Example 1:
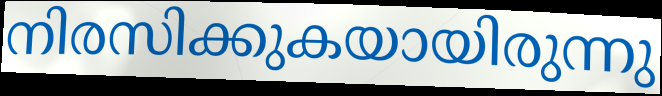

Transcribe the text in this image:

നിരസിക്കുകയായിരുന്നു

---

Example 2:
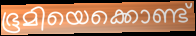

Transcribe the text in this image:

ഭൂമിയെക്കൊണ്ട്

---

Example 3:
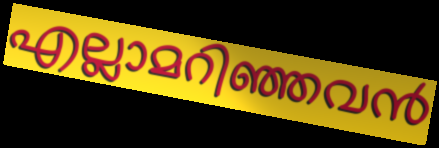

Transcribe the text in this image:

എല്ലാമറിഞ്ഞവൻ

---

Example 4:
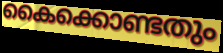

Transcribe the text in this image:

കൈക്കൊണ്ടതും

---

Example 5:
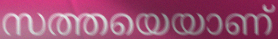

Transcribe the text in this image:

സത്തയെയാണ്